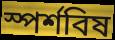
স্পর্শবিষ